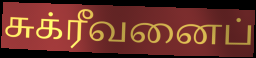
சுக்ரீவனைப்